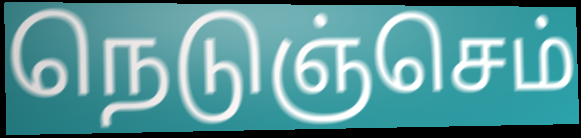
நெடுஞ்செம்